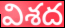
విశద